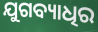
ଯୁଗବ୍ୟାଧିର